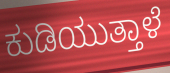
ಕುಡಿಯುತ್ತಾಳೆ